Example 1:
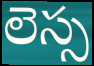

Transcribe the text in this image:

లెస్స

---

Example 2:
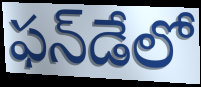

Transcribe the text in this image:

ఫన్‌డేలో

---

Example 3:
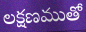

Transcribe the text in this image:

లక్షణముతో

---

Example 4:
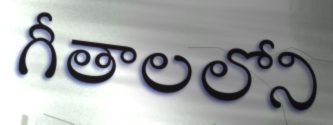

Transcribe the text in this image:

గీతాలలోని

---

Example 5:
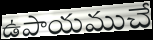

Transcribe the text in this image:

ఉపాయముచే